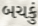
બચકું